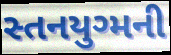
સ્તનયુગ્મની